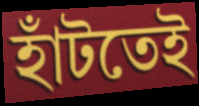
হাঁটতেই